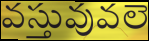
వస్తువువలె